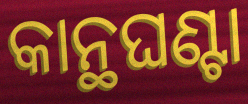
କାନ୍ଥଘଣ୍ଟା